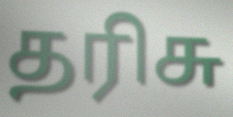
தரிசு